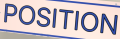
POSITION